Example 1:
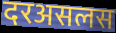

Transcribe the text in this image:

दरअसलस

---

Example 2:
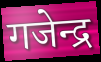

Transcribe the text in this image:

गजेन्द्र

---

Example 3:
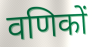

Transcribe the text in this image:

वणिकों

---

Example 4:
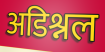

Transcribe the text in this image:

अडिश्नल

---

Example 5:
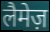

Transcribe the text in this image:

लैमेज़